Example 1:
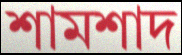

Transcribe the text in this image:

শামশাদ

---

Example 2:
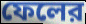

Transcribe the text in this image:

ফেলের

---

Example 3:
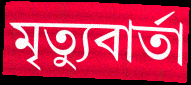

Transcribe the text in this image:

মৃত্যুবার্তা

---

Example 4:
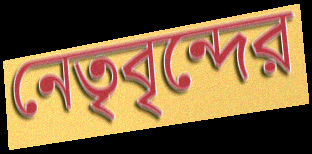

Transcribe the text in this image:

নেতৃবৃন্দের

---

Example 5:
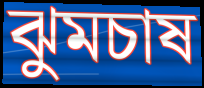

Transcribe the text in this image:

ঝুমচাষ